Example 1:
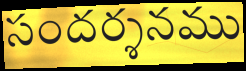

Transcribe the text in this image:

సందర్శనము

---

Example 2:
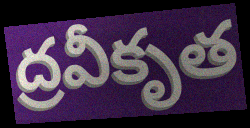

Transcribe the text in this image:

ద్రవీకృత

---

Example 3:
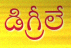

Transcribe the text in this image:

డిగ్రీలే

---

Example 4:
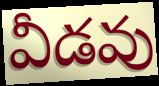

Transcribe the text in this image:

వీడవు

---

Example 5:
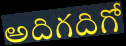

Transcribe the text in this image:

అదిగదిగో